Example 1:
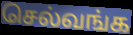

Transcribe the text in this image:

செல்வங்க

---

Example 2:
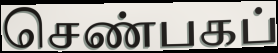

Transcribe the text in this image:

செண்பகப்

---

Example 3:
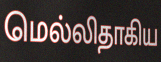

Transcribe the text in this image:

மெல்லிதாகிய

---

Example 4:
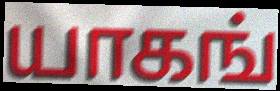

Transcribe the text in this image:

யாகங்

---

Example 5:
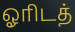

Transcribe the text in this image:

ஓரிடத்